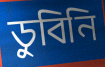
ডুবিনি